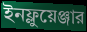
ইনফ্লুয়েঞ্জার